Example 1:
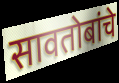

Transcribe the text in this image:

सावतोबांचे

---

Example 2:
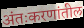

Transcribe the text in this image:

अंतःकरणांतील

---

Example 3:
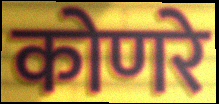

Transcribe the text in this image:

कोणरे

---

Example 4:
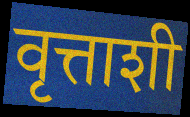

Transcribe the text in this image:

वृत्ताशी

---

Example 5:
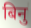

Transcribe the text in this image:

बिनु